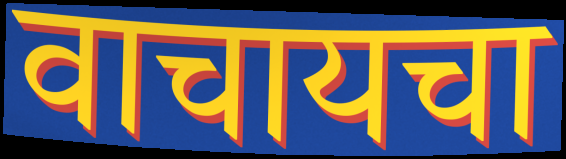
वाचायचा